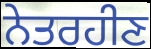
ਨੇਤਰਹੀਣ